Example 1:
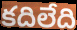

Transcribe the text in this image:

కదిలేది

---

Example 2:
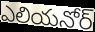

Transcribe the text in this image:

ఎలియనోర్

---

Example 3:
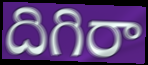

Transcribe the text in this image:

దిగిరా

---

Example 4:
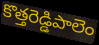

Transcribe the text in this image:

కొత్తరెడ్డిపాలెం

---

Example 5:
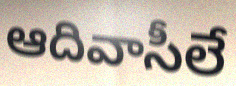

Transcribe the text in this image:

ఆదివాసీలే